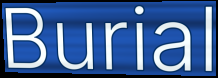
Burial